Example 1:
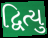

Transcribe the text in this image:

દ્વિત્યુ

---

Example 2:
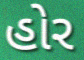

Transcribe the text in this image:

હોર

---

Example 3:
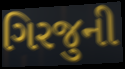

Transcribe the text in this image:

ગિરજુની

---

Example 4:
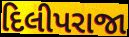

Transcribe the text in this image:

દિલીપરાજા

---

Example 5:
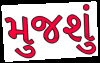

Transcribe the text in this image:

મુજશું